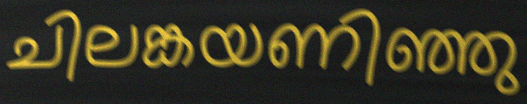
ചിലങ്കയണിഞ്ഞു